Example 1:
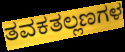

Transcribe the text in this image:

ತವಕತಲ್ಲಣಗಳ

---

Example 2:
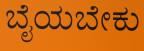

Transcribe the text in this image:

ಬೈಯಬೇಕು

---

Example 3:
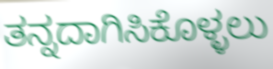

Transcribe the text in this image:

ತನ್ನದಾಗಿಸಿಕೊಳ್ಳಲು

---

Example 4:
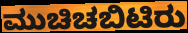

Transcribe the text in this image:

ಮುಚಿಚಬಿಟಿರು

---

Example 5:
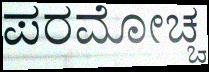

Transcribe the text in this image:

ಪರಮೋಚ್ಚ